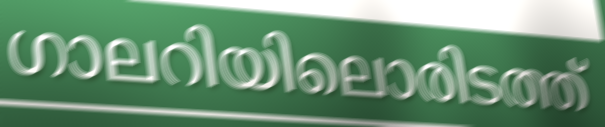
ഗാലറിയിലൊരിടത്ത്